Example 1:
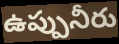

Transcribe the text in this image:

ఉప్పునీరు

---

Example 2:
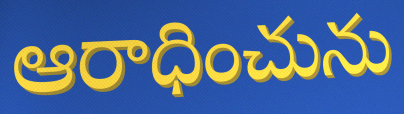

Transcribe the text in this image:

ఆరాధించును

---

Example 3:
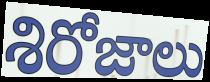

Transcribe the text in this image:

శిరోజాలు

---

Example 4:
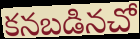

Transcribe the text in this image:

కనబడినచో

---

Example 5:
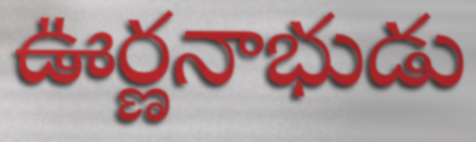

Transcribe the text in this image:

ఊర్ణనాభుడు